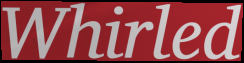
Whirled